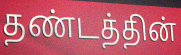
தண்டத்தின்